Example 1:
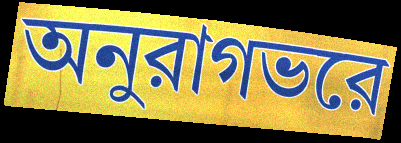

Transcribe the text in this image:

অনুরাগভরে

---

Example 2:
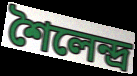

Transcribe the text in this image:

শৈলেন্দ্র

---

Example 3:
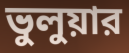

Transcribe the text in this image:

ভুলুয়ার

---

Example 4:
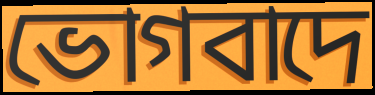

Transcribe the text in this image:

ভোগবাদে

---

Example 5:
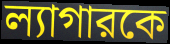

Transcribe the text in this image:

ল্যাগারকে